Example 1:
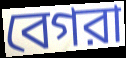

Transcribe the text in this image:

বেগরা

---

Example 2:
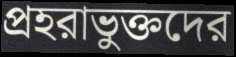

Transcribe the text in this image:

প্রহরাভুক্তদের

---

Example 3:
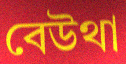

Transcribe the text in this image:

বেউথা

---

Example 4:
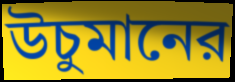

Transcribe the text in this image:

উচুমানের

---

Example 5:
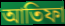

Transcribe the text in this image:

আতিফা